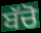
ਬੱਚੋ